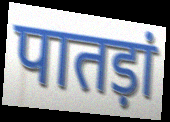
पातड़ां